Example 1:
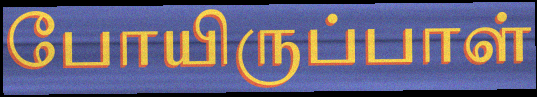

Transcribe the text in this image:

போயிருப்பாள்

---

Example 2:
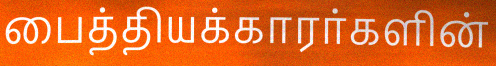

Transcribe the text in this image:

பைத்தியக்காரர்களின்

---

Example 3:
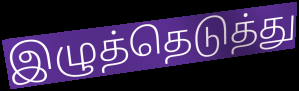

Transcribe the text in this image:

இழுத்தெடுத்து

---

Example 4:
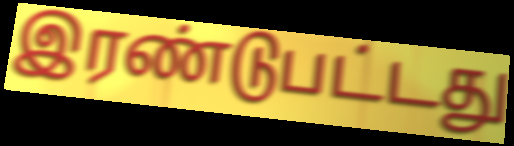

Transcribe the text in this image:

இரண்டுபட்டது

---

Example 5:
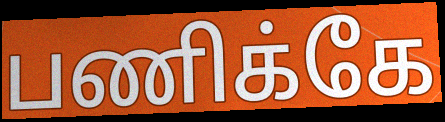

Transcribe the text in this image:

பணிக்கே